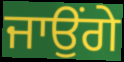
ਜਾਉਂਗੇ